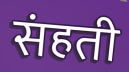
संहती